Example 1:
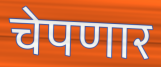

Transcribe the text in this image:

चेपणार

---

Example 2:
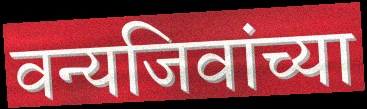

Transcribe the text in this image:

वन्यजिवांच्या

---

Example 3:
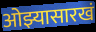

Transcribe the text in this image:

ओझ्यासारखं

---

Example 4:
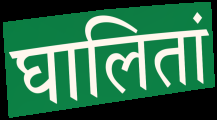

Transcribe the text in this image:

घालितां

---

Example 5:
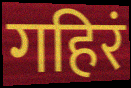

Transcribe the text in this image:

गहिरं